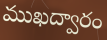
ముఖద్వారం